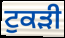
ਟੁਕਡ਼ੀ